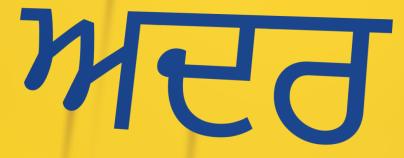
ਅਦਰ